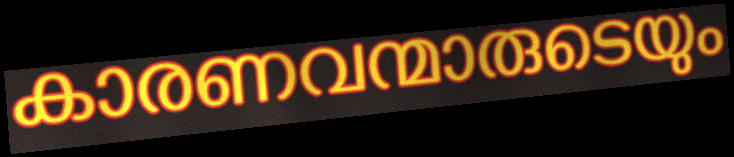
കാരണവന്മാരുടെയും